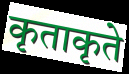
कृताकृते